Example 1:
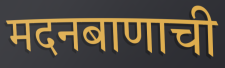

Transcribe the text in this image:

मदनबाणाची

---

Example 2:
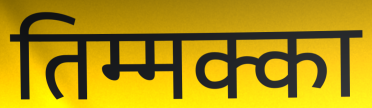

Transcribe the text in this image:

तिम्मक्का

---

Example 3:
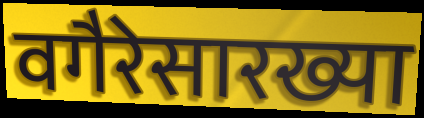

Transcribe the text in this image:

वगैरेसारख्या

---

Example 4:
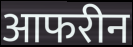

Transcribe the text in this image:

आफरीन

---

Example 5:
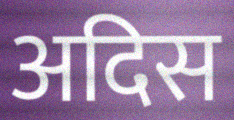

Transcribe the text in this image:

अदिस